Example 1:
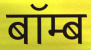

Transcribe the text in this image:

बॉम्ब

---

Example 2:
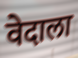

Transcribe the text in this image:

वेदाला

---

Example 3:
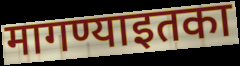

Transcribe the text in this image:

मागण्याइतका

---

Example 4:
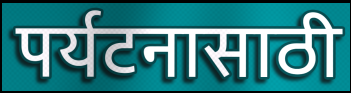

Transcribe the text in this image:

पर्यटनासाठी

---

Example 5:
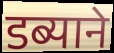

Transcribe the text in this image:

डब्याने